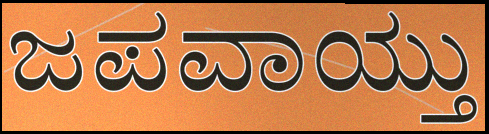
ಜಪವಾಯ್ತು